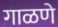
गाळणे